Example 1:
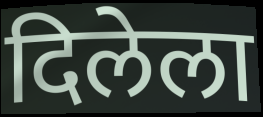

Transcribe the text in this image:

दिलेला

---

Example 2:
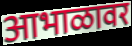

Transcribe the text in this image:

आभाळावर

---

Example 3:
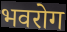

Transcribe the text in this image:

भवरोग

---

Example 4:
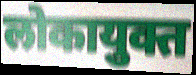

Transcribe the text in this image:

लोकायुक्त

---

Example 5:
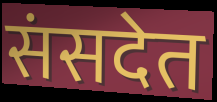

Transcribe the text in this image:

संसदेत